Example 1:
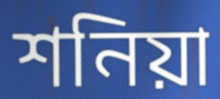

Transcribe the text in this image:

শনিয়া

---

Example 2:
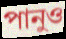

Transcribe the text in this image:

পানুও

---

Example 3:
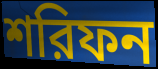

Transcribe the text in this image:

শরিফন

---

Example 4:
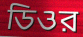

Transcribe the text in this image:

ডিওর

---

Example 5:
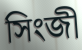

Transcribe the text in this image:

সিংজী